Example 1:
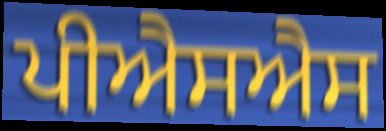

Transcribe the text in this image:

ਪੀਐਸਐਸ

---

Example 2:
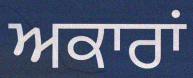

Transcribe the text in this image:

ਅਕਾਰਾਂ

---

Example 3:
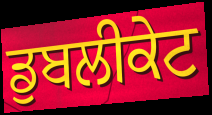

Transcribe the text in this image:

ਡੁਬਲੀਕੇਟ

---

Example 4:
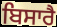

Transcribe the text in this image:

ਬਿਸਾਰੈ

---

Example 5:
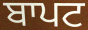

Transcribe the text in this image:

ਬਾਪਟ